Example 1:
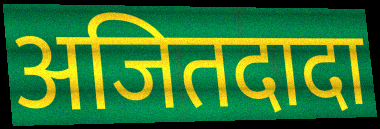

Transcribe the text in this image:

अजितदादा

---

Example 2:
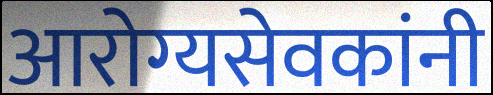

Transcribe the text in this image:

आरोग्यसेवकांनी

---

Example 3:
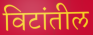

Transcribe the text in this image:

विटांतील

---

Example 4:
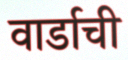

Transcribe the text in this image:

वार्डाची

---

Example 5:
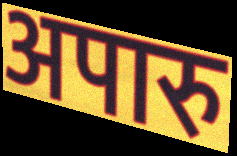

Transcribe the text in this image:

अपारु